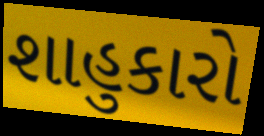
શાહુકારો